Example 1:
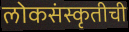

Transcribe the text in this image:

लोकसंस्कृतीची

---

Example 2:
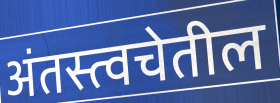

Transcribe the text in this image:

अंतस्त्वचेतील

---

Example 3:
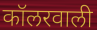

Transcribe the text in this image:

कॉलरवाली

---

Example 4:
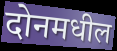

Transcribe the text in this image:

दोनमधील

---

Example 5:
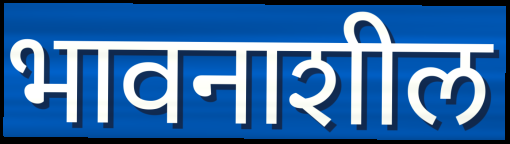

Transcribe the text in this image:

भावनाशील